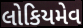
લોકિયમેવ